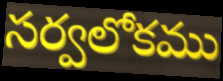
సర్వలోకము